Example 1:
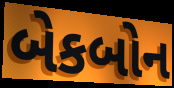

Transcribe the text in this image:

બેકબોન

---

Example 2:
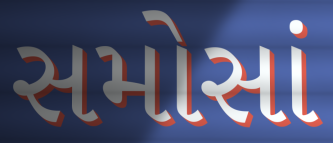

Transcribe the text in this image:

સમોસાં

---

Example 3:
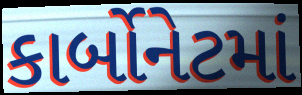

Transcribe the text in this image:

કાર્બોનેટમાં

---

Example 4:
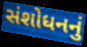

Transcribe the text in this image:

સંશોધનનું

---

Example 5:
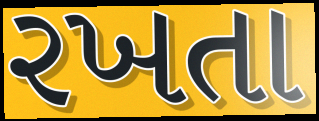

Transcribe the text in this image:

રખતા